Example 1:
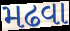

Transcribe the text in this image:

મઢવા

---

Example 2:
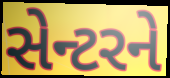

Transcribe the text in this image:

સેન્ટરને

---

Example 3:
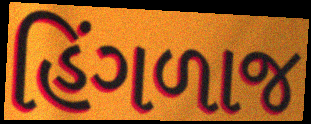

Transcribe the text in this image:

હિંગળાજ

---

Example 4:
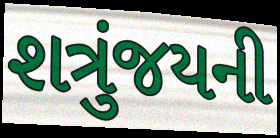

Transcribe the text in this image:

શત્રુંજયની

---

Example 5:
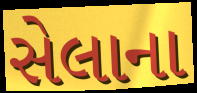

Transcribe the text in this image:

સેલાના